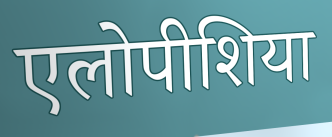
एलोपीशिया